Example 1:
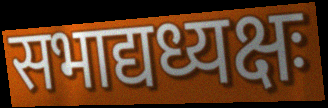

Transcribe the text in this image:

सभाद्यध्यक्षः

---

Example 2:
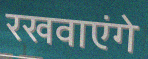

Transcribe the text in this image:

रखवाएंगे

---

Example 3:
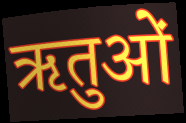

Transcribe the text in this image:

ऋतुओं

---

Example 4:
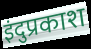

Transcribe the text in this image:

इंदुप्रकाश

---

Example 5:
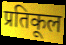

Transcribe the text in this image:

प्रतिकूल